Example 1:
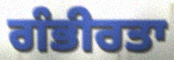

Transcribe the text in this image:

ਗੰਭੀਰਤਾ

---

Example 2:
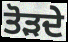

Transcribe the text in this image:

ਤੋੜਦੇ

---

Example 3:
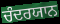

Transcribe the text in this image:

ਚੰਦਰਯਾਨ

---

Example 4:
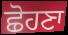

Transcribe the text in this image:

ਛੋਹਣਾ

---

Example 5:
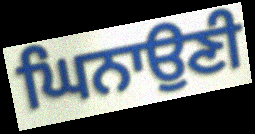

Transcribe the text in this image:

ਘਿਨਾਉਣੀ